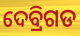
ଦେବ୍ରିଗଡ